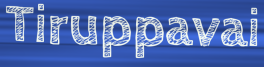
Tiruppavai